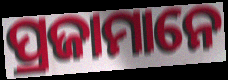
ପ୍ରଜାମାନେ